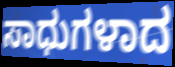
ಸಾಧುಗಳಾದ